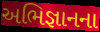
અભિજ્ઞાનના